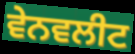
ਵੇਨਵਲੀਟ